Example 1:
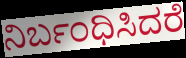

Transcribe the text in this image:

ನಿರ್ಬಂಧಿಸಿದರೆ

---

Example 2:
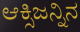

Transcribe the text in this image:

ಆಕ್ಸಿಜನ್ನಿನ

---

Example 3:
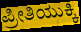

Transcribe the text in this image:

ಪ್ರೀತಿಯುಕ್ಕಿ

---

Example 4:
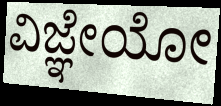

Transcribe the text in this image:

ವಿಜ್ಞೇಯೋ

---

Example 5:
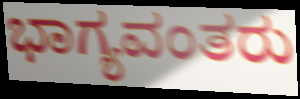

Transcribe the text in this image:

ಭಾಗ್ಯವಂತರು